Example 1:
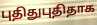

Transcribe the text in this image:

புதிதுபுதிதாக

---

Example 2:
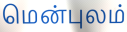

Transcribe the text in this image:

மென்புலம்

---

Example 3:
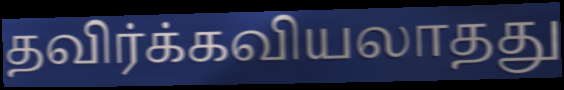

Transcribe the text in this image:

தவிர்க்கவியலாதது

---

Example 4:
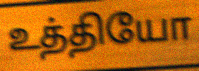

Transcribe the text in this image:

உத்தியோ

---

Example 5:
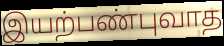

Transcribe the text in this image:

இயற்பண்புவாத